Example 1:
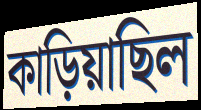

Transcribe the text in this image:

কাড়িয়াছিল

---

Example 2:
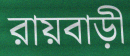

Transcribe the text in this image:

রায়বাড়ী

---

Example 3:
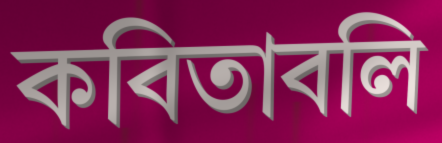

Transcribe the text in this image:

কবিতাবলি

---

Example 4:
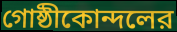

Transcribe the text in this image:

গোষ্ঠীকোন্দলের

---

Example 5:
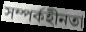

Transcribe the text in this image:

সম্পর্কহীনতা